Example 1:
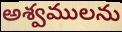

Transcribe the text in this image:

అశ్వములను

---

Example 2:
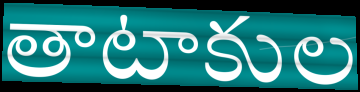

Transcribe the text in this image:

తాటాకుల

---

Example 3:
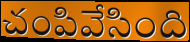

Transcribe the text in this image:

చంపివేసింది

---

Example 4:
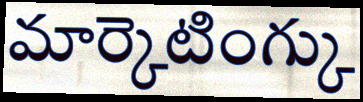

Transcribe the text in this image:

మార్కెటింగ్కు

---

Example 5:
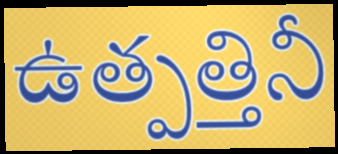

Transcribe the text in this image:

ఉత్పత్తినీ